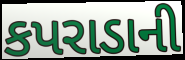
કપરાડાની